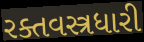
રક્તવસ્ત્રધારી